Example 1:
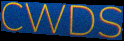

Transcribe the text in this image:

CWDS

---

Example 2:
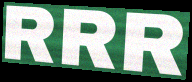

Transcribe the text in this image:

RRR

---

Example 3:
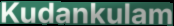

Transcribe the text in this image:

Kudankulam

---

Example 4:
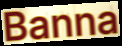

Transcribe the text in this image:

Banna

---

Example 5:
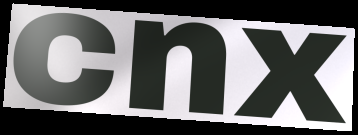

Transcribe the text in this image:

cnx